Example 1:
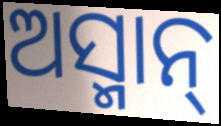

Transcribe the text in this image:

ଅସ୍ମାନ୍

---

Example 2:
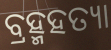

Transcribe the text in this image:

ବ୍ରହ୍ମହତ୍ୟା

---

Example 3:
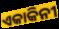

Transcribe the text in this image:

ଏକାକିନୀ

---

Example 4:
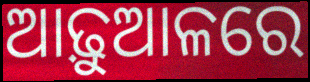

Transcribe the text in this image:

ଆଢ଼ୁଆଳରେ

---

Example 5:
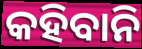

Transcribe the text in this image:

କହିବାନି